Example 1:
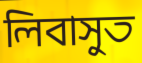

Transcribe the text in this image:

লিবাসুত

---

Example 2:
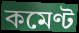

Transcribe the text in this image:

কমেণ্ট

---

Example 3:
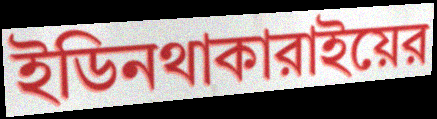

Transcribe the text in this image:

ইডিনথাকারাইয়ের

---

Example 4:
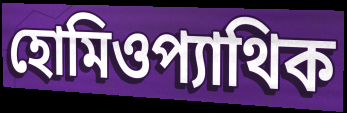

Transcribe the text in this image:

হোমিওপ্যাথিক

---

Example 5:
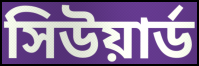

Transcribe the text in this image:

সিউয়ার্ড